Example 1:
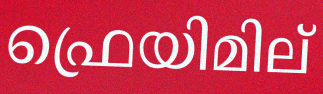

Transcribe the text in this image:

ഫ്രെയിമില്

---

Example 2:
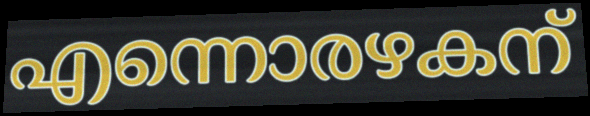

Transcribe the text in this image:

എന്നൊരഴകന്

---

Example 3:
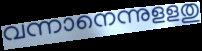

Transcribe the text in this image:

വന്നാനെന്നുളളതു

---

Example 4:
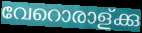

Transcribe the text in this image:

വേറൊരാള്ക്കു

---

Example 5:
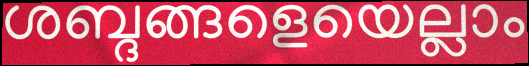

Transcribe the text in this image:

ശബ്ദങ്ങളെയെല്ലാം